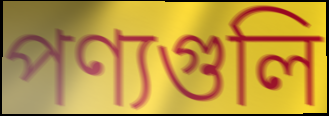
পণ্যগুলি